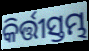
କିର୍ତ୍ତୀସ୍ତମ୍ଭ